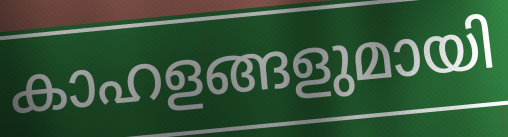
കാഹളങ്ങളുമായി